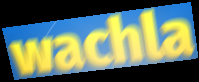
wachla